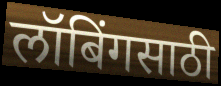
लॉबिंगसाठी